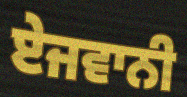
ਏਜਵਾਨੀ